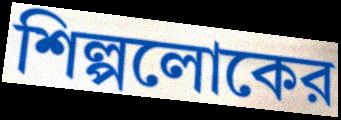
শিল্পলোকের